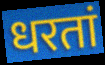
धरतां